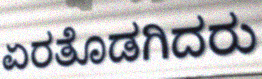
ಏರತೊಡಗಿದರು